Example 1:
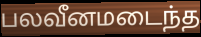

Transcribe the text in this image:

பலவீனமடைந்த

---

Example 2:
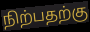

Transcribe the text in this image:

நிற்பதற்கு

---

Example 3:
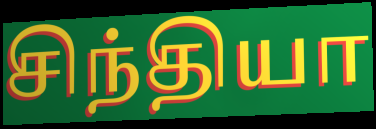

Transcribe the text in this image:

சிந்தியா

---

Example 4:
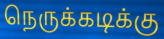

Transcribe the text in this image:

நெருக்கடிக்கு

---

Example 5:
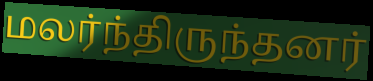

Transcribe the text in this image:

மலர்ந்திருந்தனர்